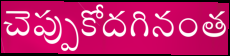
చెప్పుకోదగినంత